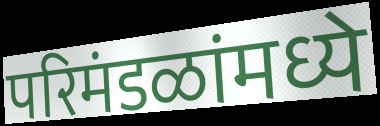
परिमंडळांमध्ये